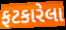
ફટકારેલા